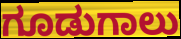
ಗೂಡುಗಾಲು